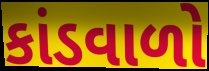
કાંડવાળો